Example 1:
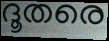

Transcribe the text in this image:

ദൂതരെ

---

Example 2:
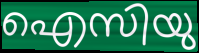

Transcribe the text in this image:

ഐസിയു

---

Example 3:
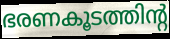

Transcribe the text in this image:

ഭരണകൂടത്തിന്റ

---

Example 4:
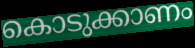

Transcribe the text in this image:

കൊടുക്കാണം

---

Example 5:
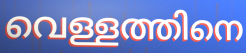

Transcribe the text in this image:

വെള്ളത്തിനെ